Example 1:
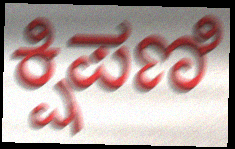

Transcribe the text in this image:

ಕ್ಷಿಪಣಿ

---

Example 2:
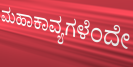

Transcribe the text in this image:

ಮಹಾಕಾವ್ಯಗಳೆಂದೇ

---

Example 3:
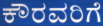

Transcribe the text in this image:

ಕೌರವರಿಗೆ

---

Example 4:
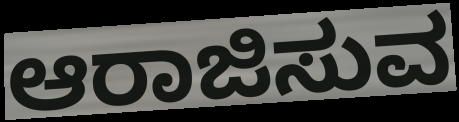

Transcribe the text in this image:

ಆರಾಜಿಸುವ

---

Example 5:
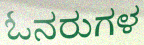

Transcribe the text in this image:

ಓನರುಗಳ